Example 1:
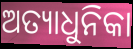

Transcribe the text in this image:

ଅତ୍ୟାଧୁନିକା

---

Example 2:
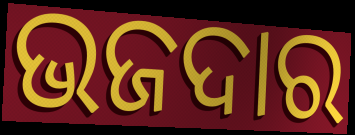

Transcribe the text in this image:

ଭଜଦାର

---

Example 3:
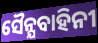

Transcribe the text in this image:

ସୈନ୍ଯବାହିନୀ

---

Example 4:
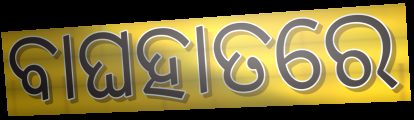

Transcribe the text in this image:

ବାଘହାତରେ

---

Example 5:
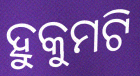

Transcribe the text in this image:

ହୁକୁମଟି